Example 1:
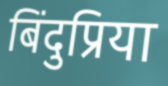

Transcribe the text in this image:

बिंदुप्रिया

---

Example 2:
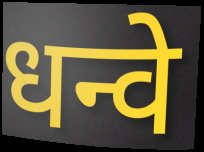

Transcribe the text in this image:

धन्वे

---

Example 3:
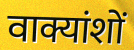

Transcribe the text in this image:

वाक्यांशों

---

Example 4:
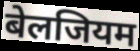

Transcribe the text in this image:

बेलजियम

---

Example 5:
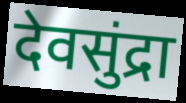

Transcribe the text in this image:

देवसुंद्रा